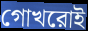
গোখরোই